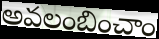
అవలంబించాం